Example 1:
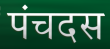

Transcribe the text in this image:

पंचदस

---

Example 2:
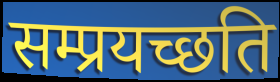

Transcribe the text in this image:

सम्प्रयच्छति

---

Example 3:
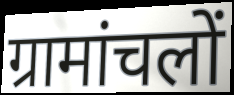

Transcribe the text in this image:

ग्रामांचलों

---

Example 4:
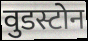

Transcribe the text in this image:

वुडस्टोन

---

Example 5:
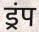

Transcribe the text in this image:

ड्रंप